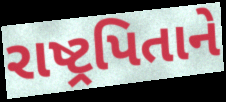
રાષ્ટ્રપિતાને